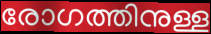
രോഗത്തിനുള്ള